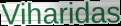
Viharidas